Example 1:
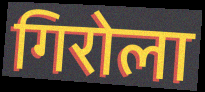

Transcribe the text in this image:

गिरोला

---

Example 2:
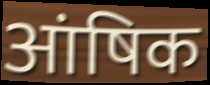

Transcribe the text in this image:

आंषिक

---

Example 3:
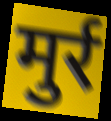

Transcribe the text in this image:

मुर्र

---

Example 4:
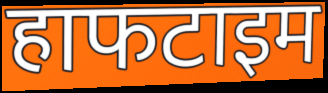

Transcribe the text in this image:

हाफटाइम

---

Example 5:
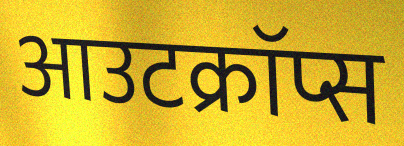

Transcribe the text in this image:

आउटक्रॉप्स